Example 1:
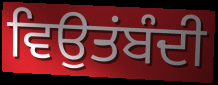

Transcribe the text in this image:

ਵਿਉਤਂਬੰਦੀ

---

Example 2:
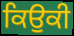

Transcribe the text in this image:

ਕਿਉਕੀ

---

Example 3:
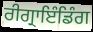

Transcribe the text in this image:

ਰੀਗ੍ਰਾਇੰਡਿੰਗ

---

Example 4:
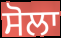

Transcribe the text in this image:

ਸੋਲਾ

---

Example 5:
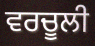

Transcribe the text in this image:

ਵਰਚੂਲੀ